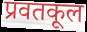
प्रवतकूल